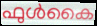
ഫുൾകൈ